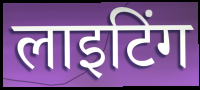
लाइटिंग